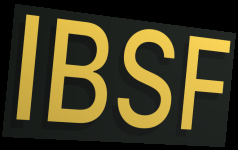
IBSF